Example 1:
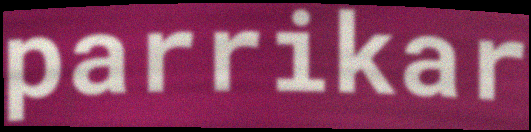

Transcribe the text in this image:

parrikar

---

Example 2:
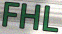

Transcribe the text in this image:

FHL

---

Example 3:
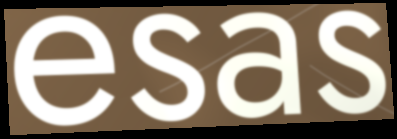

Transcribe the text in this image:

esas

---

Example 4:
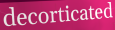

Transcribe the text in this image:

decorticated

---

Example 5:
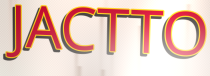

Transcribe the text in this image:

JACTTO